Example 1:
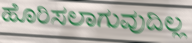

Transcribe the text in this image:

ಹೊರಿಸಲಾಗುವುದಿಲ್ಲ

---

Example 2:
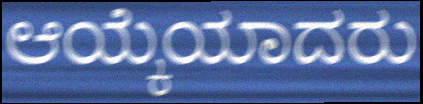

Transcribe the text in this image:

ಆಯ್ಕೆಯಾದರು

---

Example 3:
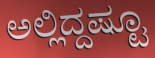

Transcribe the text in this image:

ಅಲ್ಲಿದ್ದಷ್ಟೂ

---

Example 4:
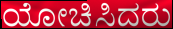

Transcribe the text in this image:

ಯೋಚಿಸಿದರು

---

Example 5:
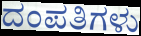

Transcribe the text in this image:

ದಂಪತಿಗಳು